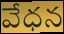
వేధన